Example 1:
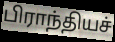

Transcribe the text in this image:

பிராந்தியச்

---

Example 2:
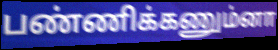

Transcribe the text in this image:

பண்ணிக்கணும்னா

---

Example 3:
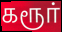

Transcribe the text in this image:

கரூர்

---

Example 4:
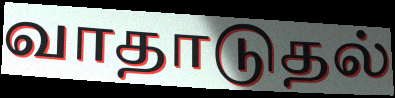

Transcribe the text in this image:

வாதாடுதல்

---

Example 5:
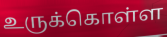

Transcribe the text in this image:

உருக்கொள்ள